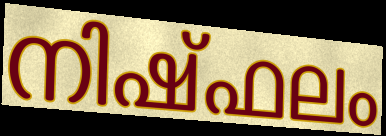
നിഷ്ഫലം